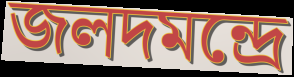
জলদমন্দ্রে